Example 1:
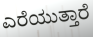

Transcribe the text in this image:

ಎರೆಯುತ್ತಾರೆ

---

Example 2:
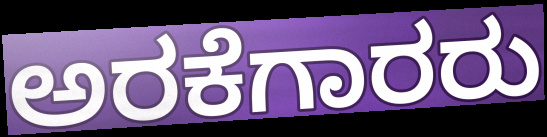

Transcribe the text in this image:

ಅರಕೆಗಾರರು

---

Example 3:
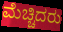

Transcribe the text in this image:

ಮೆಚ್ಚಿದರು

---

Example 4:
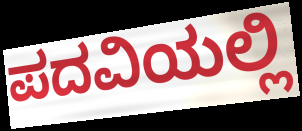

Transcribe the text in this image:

ಪದವಿಯಲ್ಲಿ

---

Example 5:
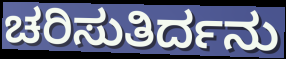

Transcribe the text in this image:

ಚರಿಸುತಿರ್ದನು